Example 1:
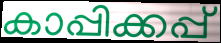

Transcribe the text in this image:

കാപ്പിക്കപ്പ്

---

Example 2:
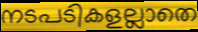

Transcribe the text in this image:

നടപടികളല്ലാതെ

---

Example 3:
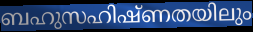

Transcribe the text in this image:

ബഹുസഹിഷ്ണതയിലും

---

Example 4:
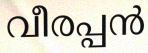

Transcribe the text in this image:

വീരപ്പൻ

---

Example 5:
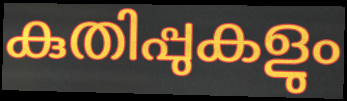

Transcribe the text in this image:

കുതിപ്പുകളും